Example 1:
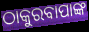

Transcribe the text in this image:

ଠାକୁରବାପାଙ୍କ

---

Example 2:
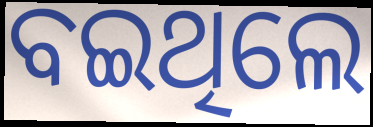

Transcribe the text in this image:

ବଇଥିଲେ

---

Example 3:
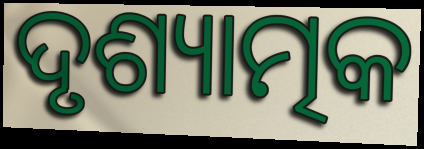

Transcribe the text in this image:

ଦୃଶ୍ୟାତ୍ମକ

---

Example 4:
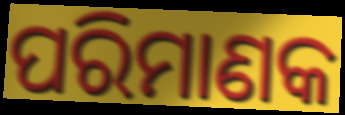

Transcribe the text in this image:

ପରିମାଣକ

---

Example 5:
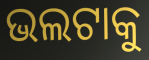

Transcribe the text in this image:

ଭଲଟାକୁ